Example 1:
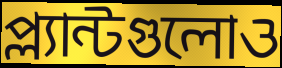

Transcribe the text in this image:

প্ল্যান্টগুলোও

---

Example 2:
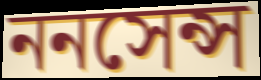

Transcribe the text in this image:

ননসেন্স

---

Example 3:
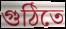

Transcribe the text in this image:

গুঠিতে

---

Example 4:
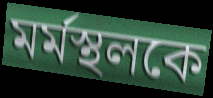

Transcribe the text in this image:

মর্মস্থলকে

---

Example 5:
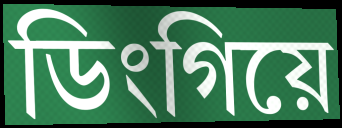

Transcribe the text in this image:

ডিংগিয়ে